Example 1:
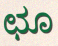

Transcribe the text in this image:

ಛೂ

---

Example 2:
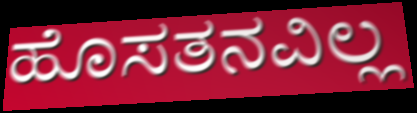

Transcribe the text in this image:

ಹೊಸತನವಿಲ್ಲ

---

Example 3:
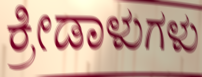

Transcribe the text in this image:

ಕ್ರೀಡಾಳುಗಳು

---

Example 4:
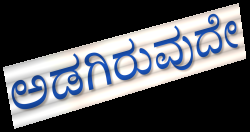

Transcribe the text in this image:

ಅಡಗಿರುವುದೇ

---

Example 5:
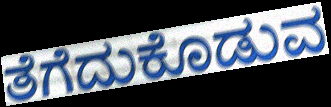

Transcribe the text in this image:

ತೆಗೆದುಕೊಡುವ